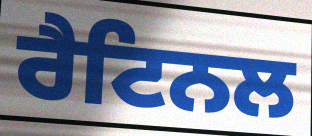
ਰੈਟਿਨਲ